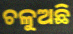
ଚଳୁଅଛି